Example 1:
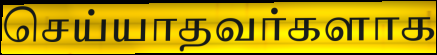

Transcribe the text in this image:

செய்யாதவர்களாக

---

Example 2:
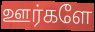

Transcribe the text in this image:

ஊர்களே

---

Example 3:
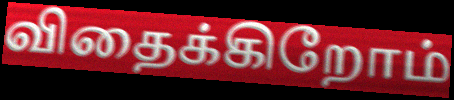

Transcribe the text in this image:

விதைக்கிறோம்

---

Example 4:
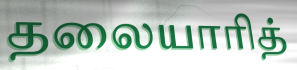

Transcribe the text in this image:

தலையாரித்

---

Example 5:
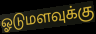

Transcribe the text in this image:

ஓடுமளவுக்கு